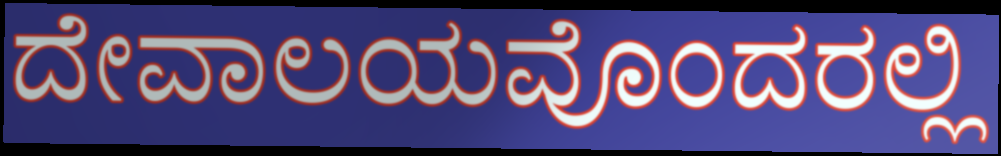
ದೇವಾಲಯವೊಂದರಲ್ಲಿ